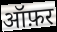
ऑफ़र